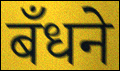
बँधने